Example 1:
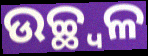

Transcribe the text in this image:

ଉଚ୍ଛ୍ଵଳ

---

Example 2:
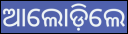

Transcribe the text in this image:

ଆଲୋଡ଼ିଲେ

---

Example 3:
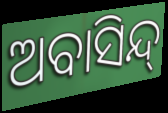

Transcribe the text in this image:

ଅବାସିନ୍ଦ୍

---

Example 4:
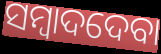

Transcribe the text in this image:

ସମ୍ବାଦଦେବା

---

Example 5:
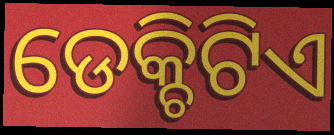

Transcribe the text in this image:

ଡେକ୍ଚିଟିଏ